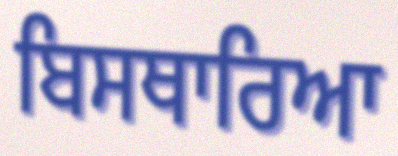
ਬਿਸਥਾਰਿਆ